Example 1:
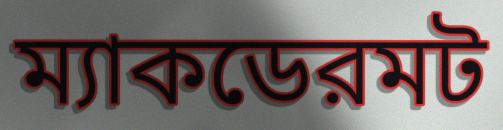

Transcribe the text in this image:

ম্যাকডেরমট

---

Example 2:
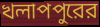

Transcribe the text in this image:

খলাপপুরের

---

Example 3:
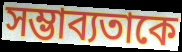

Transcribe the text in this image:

সম্ভাব্যতাকে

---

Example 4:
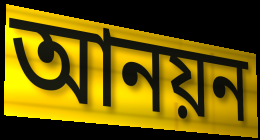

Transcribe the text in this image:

আনয়ন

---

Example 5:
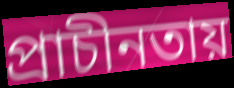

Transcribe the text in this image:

প্রাচীনতায়